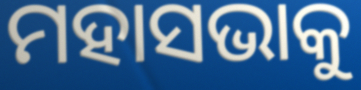
ମହାସଭାକୁ